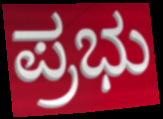
ಪ್ರಭು